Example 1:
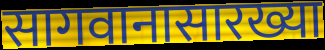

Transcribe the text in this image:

सागवानासारख्या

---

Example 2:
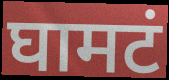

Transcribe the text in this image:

घामटं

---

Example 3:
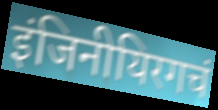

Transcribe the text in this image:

इंजिनीयिरगचं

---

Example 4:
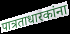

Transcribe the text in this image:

पात्रताधारकांना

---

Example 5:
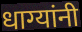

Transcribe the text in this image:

धाग्यांनी